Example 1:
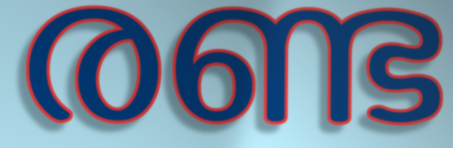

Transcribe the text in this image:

രണ്ട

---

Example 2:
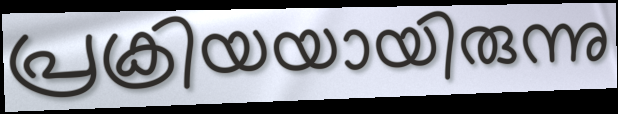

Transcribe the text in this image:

പ്രക്രിയയായിരുന്നു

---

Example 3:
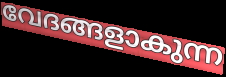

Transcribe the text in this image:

വേദങ്ങളാകുന്ന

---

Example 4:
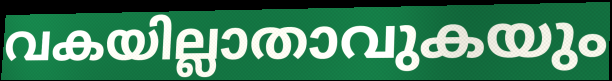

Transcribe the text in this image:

വകയില്ലാതാവുകയും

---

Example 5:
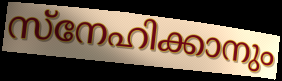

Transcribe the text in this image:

സ്നേഹിക്കാനും